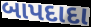
બાપદાદા